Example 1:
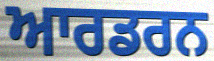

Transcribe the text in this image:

ਆਰਡਰਨ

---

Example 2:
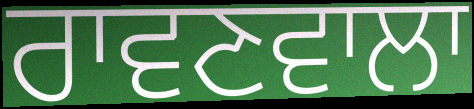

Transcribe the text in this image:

ਰਾਵਣਵਾਲਾ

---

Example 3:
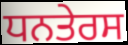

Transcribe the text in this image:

ਧਨਤੇਰਸ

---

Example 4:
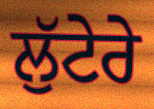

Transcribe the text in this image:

ਲੁੱਟੇਰੇ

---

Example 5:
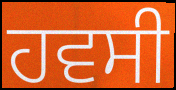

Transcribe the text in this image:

ਹਵਸੀ